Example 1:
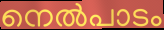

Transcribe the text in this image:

നെൽപാടം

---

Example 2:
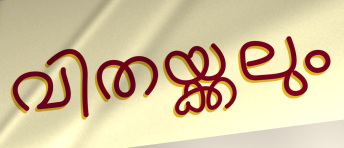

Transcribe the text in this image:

വിതയ്ക്കലും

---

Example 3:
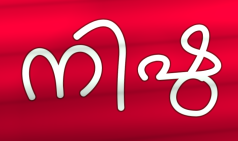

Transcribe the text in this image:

നിഷ്ഠ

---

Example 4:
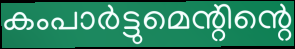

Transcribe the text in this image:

കംപാർട്ടുമെന്റിന്റെ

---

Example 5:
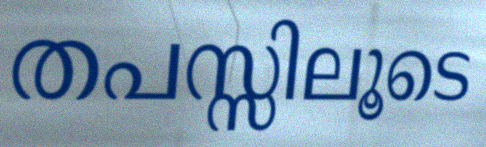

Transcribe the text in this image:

തപസ്സിലൂടെ